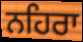
ਨਹਿਰਾ